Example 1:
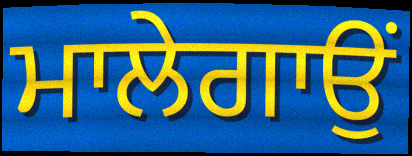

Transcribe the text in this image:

ਮਾਲੇਗਾਉਂ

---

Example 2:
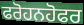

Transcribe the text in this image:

ਫਰੋਹਨਹੋਫਰ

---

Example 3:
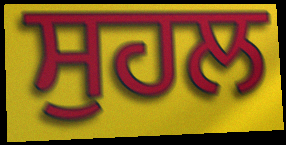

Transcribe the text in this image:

ਸੁਹਲ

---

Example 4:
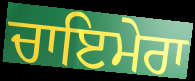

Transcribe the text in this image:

ਚਾਇਮੇਰਾ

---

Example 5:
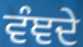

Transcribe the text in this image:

ਵੰਞਦੇ